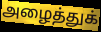
அழைத்துக்